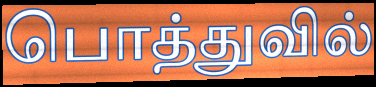
பொத்துவில்